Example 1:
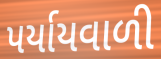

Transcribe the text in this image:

પર્યાયવાળી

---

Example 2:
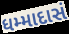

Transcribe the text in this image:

ધમ્માદાસં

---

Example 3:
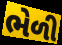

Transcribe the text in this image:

ભેળી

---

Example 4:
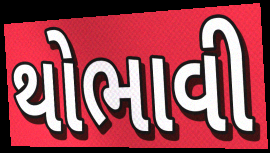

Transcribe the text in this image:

થોભાવી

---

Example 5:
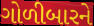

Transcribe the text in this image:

ગોળીબારને